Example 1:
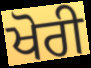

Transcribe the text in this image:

ਖੋਰੀ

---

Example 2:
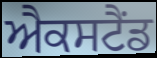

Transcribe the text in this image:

ਐਕਸਟੈਂਡ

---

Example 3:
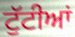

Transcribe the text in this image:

ਟੁੱਟੀਆਂ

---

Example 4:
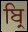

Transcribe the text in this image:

ਬ੍ਰਿ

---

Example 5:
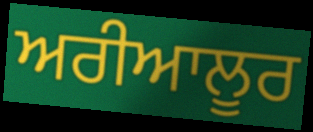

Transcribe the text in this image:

ਅਰੀਆਲੂਰ